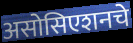
असोसिएशनचे